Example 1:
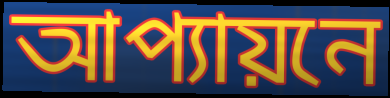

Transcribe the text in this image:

আপ্যায়নে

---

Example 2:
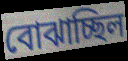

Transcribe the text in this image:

বোঝাচ্ছিল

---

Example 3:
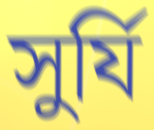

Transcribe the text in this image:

সুর্যি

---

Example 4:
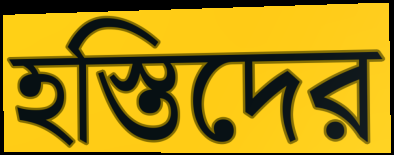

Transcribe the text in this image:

হস্তিদের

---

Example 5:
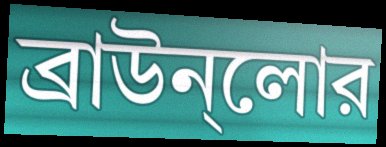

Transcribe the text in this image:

ব্রাউন্লোর